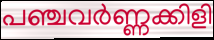
പഞ്ചവർണ്ണക്കിളി